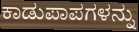
ಕಾಡುಪಾಪಗಳನ್ನು